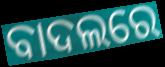
ବାଦଲରେ